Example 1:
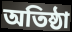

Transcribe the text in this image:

অতিষ্ঠা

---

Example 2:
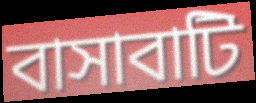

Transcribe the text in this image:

বাসাবাটি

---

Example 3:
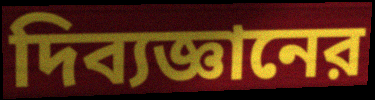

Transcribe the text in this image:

দিব্যজ্ঞানের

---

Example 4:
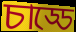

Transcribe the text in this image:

চাড্ডে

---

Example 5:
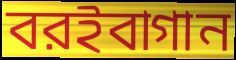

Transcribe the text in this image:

বরইবাগান